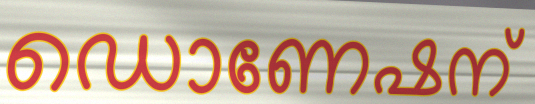
ഡൊണേഷന്